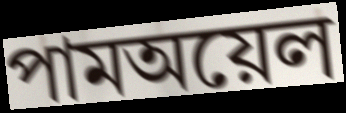
পামঅয়েল